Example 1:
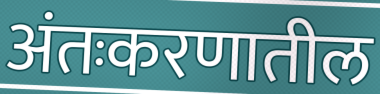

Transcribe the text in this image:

अंतःकरणातील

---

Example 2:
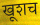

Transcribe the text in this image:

खूशच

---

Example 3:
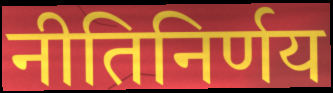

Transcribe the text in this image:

नीतिनिर्णय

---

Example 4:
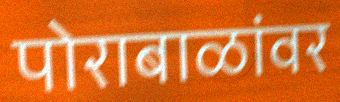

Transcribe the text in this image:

पोराबाळांवर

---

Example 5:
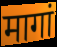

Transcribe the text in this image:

मागां